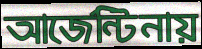
আর্জেন্টিনায়